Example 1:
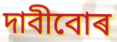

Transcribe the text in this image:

দাবীবোৰ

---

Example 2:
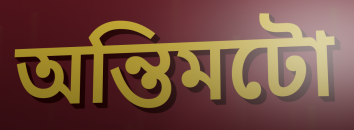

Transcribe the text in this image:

অন্তিমটো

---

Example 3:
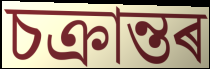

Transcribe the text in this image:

চক্ৰান্তৰ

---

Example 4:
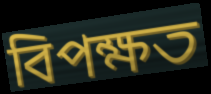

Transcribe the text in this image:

বিপক্ষত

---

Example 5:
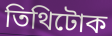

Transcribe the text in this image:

তিথিটোক